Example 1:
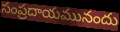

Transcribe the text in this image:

సంప్రదాయమునందు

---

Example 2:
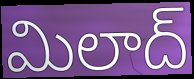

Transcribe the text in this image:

మిలాద్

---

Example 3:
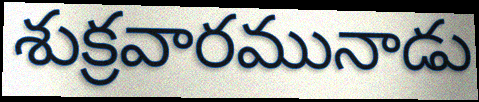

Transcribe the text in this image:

శుక్రవారమునాడు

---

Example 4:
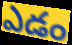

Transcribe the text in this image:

ఎడం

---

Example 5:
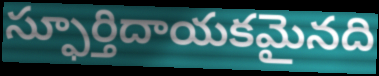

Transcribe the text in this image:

స్ఫూర్తిదాయకమైనది